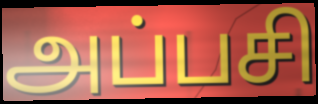
அப்பசி